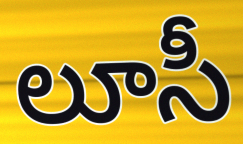
లూసీ